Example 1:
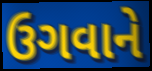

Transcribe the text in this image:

ઉગવાને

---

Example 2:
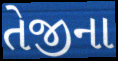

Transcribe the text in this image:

તેજીના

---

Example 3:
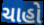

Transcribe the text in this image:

ચાહો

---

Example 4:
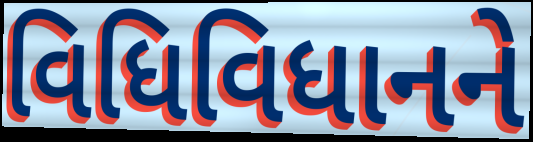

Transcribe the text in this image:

વિધિવિધાનને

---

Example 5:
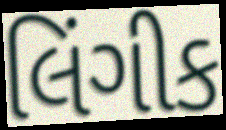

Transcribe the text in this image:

લિંગીક